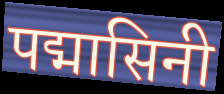
पद्मासिनी